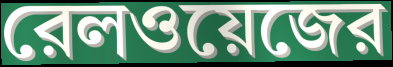
রেলওয়েজের